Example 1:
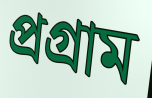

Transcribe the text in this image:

প্ৰগ্ৰাম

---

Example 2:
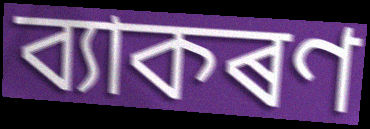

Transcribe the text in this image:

ব্যাকৰণ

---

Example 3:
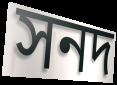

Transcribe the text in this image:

সনদ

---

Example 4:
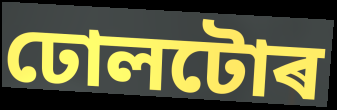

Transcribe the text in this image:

ঢোলটোৰ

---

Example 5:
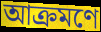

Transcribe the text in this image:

আক্ৰমণে